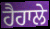
ਹੈਹਾਲੇ